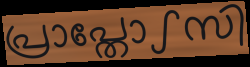
പ്രാപ്തോഽസി